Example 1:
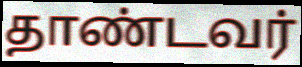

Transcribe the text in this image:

தாண்டவர்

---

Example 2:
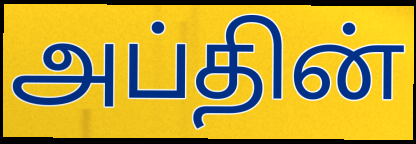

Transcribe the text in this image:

அப்தின்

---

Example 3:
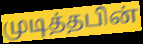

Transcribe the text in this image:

முடித்தபின்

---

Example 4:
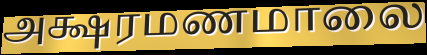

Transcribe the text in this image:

அக்ஷரமணமாலை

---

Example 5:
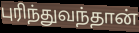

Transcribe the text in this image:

புரிந்துவந்தான்